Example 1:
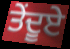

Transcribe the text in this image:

ਤੇਂਦੂਏ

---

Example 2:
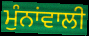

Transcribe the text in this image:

ਮੁੰਨਾਂਵਾਲੀ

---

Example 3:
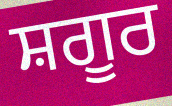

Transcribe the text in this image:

ਸ਼ਗੂਰ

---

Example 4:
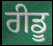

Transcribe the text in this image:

ਰੀਡੂ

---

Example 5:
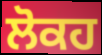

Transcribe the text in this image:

ਲੋਕਹ